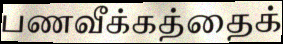
பணவீக்கத்தைக்